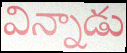
విన్నాడు